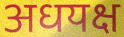
अधयक्ष